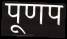
पूणप